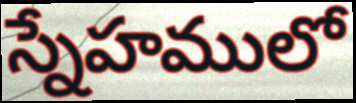
స్నేహములో